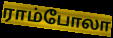
ராம்போலா